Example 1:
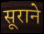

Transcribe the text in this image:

सूराने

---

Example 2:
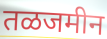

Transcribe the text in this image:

तळजमीन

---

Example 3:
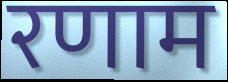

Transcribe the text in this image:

रणाम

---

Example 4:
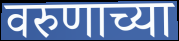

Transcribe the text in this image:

वरुणाच्या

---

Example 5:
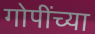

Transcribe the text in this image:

गोपींच्या